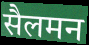
सैलमन